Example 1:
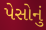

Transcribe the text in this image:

પેસોનું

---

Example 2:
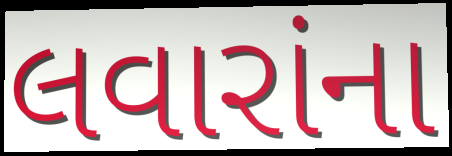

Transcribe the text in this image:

લવારાંના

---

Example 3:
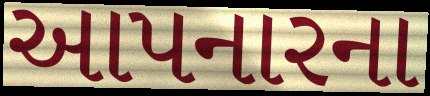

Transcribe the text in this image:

આપનારના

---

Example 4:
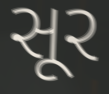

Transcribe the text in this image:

સૂર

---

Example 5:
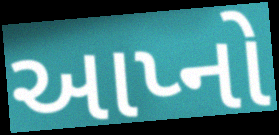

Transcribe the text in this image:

આપ્નો